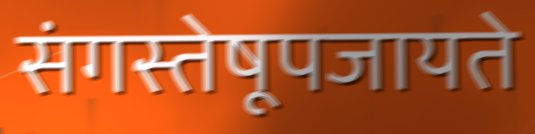
संगस्तेषूपजायते